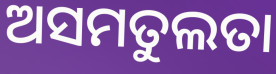
ଅସମତୁଲତା